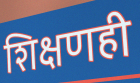
शिक्षणही